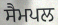
ਸੈਮਪਲ